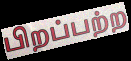
பிறப்பற்ற